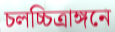
চলচ্চিত্রাঙ্গনে